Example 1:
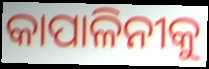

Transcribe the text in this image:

କାପାଳିନୀକୁ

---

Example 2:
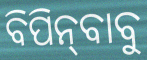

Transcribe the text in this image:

ବିପିନ୍‍ବାବୁ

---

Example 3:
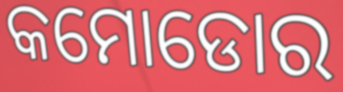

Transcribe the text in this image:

କମୋଡୋର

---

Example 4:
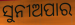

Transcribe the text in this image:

ସୁନୀଅପାର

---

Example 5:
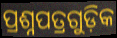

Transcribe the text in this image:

ପ୍ରଶ୍ନପତ୍ରଗୁଡ଼ିକ